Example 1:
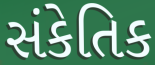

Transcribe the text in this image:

સંકેતિક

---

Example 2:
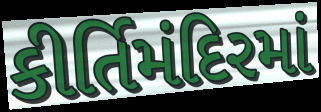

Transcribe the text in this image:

કીર્તિમંદિરમાં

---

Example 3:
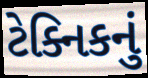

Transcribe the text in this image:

ટેક્નિકનું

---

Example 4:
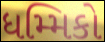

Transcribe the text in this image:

ધમ્મિકો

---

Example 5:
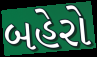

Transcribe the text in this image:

બહેરો